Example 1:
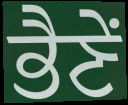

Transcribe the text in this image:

ਭੈਣੇਂ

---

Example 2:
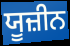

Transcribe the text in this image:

ਯੂਜ਼ੀਨ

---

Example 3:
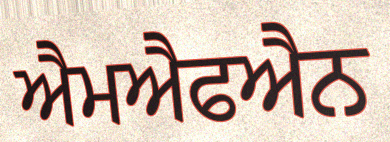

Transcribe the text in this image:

ਐਮਐਫਐਨ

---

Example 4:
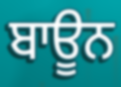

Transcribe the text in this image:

ਬਾਊਨ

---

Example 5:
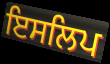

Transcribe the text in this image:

ਇਸਲਿਪ